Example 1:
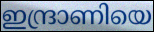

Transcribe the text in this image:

ഇന്ദ്രാണിയെ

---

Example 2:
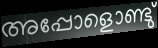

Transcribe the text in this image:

അപ്പോളൊണ്ടു്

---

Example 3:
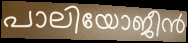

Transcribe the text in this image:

പാലിയോജീൻ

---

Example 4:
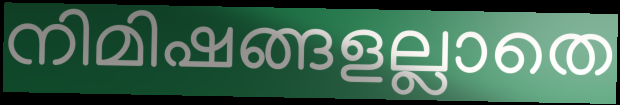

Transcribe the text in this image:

നിമിഷങ്ങളല്ലാതെ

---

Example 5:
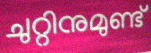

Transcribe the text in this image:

ചുറ്റിനുമുണ്ട്